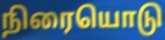
நிரையொடு